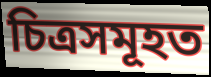
চিত্ৰসমূহত